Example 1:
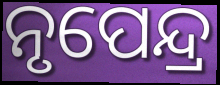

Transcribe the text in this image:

ନୃପେନ୍ଦ୍ର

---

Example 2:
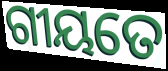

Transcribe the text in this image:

ଗୀୟତେ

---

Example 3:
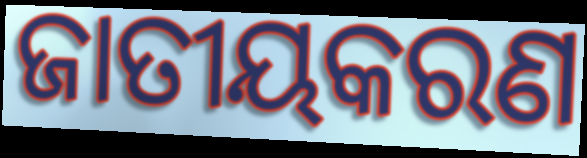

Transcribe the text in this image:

ଜାତୀୟକରଣ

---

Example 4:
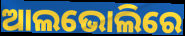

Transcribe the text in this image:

ଆଲଭୋଲିରେ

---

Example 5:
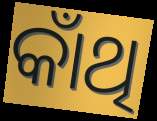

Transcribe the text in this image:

କାଁଥି